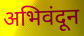
अभिवंदून